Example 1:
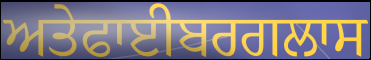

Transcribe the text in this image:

ਅਤੇਫਾਈਬਰਗਲਾਸ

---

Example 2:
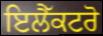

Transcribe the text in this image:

ਇਲੈੱਕਟਰੋ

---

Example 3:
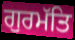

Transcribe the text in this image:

ਗੁਰਮੱਤਿ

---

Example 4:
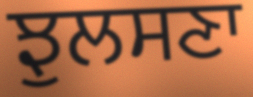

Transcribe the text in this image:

ਝੁਲਸਣਾ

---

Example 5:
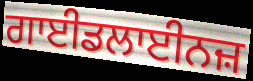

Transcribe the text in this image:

ਗਾਈਡਲਾਈਨਜ਼